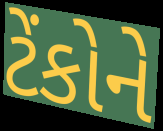
ટેંકોને